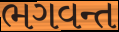
ભગવન્ત